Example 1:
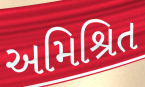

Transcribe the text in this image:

અમિશ્રિત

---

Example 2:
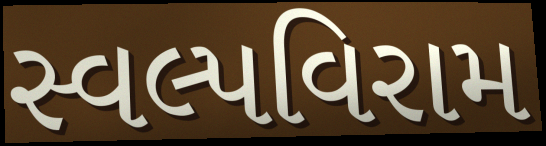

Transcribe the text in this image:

સ્વલ્પવિરામ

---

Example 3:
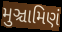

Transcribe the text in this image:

મુઞ્ચામિણં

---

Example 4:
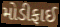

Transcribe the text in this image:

મોડીફાઈ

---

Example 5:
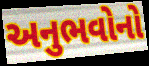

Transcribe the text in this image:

અનુભવોનો